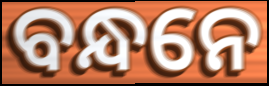
ବନ୍ଧନେ